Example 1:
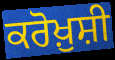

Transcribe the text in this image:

ਕਰੋਖ਼ੁਸ਼ੀ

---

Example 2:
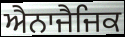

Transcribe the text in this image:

ਐਨਾਜੈਜਿਕ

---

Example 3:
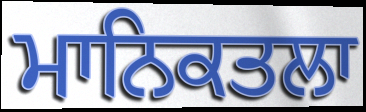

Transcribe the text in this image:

ਮਾਨਿਕਤਲਾ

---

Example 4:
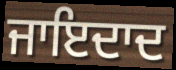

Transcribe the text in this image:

ਜਾਇਦਾਦ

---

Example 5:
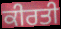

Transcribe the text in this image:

ਕੀਰਤੀ